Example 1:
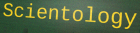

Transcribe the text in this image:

Scientology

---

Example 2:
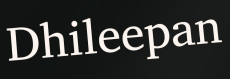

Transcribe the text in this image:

Dhileepan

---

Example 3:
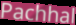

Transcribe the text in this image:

Pachhal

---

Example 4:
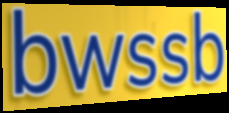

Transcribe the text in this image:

bwssb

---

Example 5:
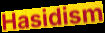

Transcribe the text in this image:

Hasidism